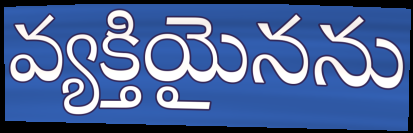
వ్యక్తియైనను